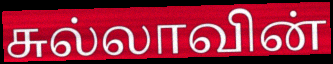
சுல்லாவின்